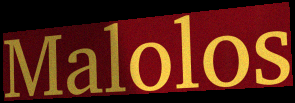
Malolos